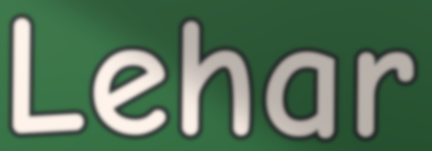
Lehar